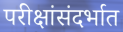
परीक्षांसंदर्भात